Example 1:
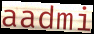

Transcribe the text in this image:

aadmi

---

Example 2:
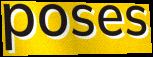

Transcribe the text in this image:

poses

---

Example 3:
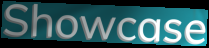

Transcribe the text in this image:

Showcase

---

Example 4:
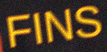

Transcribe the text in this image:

FINS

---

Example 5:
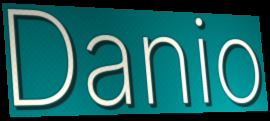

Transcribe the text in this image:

Danio